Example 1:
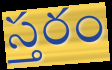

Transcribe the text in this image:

స్తరం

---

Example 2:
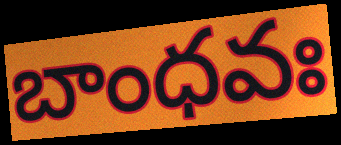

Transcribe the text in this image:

బాంధవః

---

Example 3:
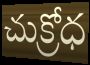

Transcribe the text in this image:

చుక్రోధ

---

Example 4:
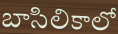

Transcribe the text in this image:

బాసిలికాలో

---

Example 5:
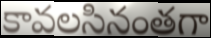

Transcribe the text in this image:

కావలసినంతగా